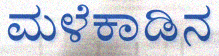
ಮಳೆಕಾಡಿನ